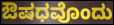
ಔಷಧವೊಂದು